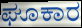
ಘೂಕಾರ